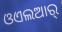
ଓଏଲଆର୍